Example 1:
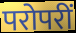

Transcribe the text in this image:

परोपरीं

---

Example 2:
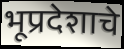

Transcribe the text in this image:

भूप्रदेशाचे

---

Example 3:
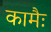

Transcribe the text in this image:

कामैः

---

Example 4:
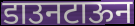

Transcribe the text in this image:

डाउनटाऊन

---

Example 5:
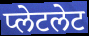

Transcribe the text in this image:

प्लेटलेट